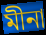
মীনা